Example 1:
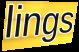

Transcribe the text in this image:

lings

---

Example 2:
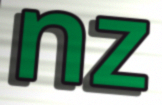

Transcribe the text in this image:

nz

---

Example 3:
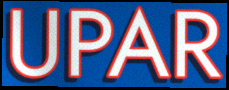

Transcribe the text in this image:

UPAR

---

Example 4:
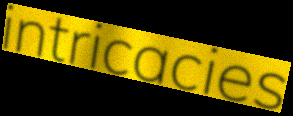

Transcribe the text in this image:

intricacies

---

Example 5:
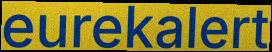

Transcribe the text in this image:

eurekalert